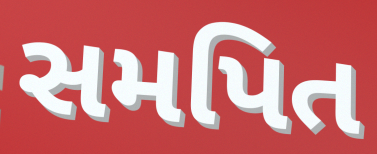
સમપિત